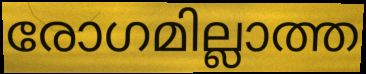
രോഗമില്ലാത്ത